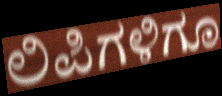
ಲಿಪಿಗಳಿಗೂ